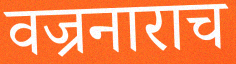
वज्रनाराच